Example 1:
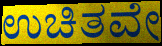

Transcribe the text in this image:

ಉಚಿತವೇ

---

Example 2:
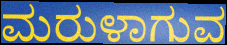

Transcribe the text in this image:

ಮರುಳಾಗುವ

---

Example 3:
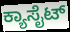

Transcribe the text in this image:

ಕ್ಯಾಸೈಟ್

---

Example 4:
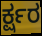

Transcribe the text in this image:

ರ್ಕ್ಷರ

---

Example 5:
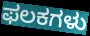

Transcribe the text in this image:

ಫಲಕಗಳು